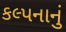
કલ્પનાનું